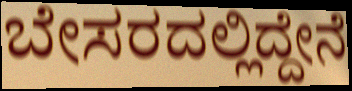
ಬೇಸರದಲ್ಲಿದ್ದೇನೆ